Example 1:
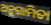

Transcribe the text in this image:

ଅନୁଗାମିତା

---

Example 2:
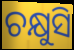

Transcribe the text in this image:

ଚକ୍ଷୁସି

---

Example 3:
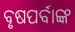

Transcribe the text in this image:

ବୃଷପର୍ବାଙ୍କ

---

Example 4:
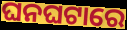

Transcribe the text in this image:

ଘନଘଟାରେ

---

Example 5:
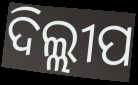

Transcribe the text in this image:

ଦିଲ୍ଲୀପ